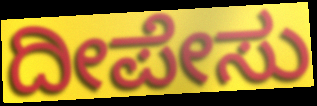
ದೀಪೇಸು